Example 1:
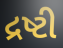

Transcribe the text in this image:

દ્રષ્ટી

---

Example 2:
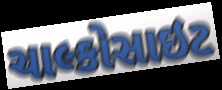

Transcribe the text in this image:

ચાલ્કોસાઇટ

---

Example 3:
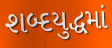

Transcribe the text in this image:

શબ્દયુદ્ધમાં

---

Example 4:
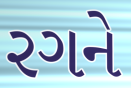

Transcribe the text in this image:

રગને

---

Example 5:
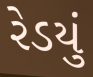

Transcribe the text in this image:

રેડયું